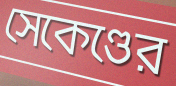
সেকেণ্ডের